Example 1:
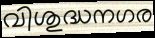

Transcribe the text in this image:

വിശുദ്ധനഗര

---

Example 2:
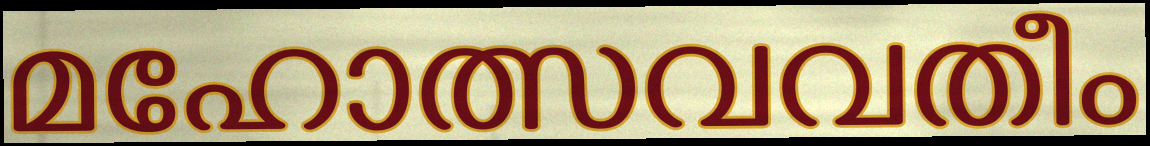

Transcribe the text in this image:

മഹോത്സവവതീം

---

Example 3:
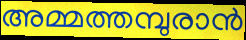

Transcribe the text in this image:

അമ്മത്തമ്പുരാൻ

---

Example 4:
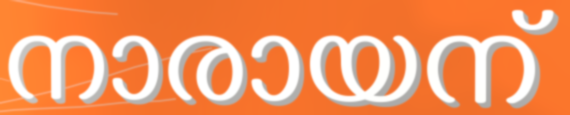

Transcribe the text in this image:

നാരായന്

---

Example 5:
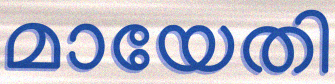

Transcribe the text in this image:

മായേതി